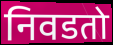
निवडतो